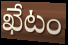
ఖేటం